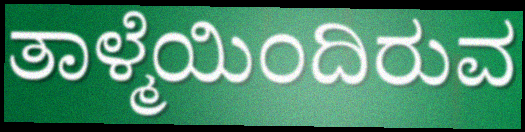
ತಾಳ್ಮೆಯಿಂದಿರುವ